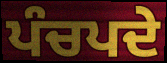
ਪੰਚਪਦੇ